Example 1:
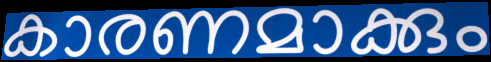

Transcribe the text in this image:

കാരണമാക്കും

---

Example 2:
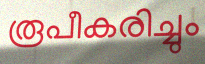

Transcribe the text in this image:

രൂപീകരിച്ചും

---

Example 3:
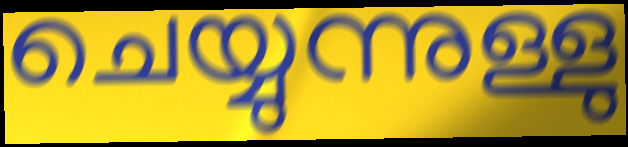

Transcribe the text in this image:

ചെയ്യുന്നുള്ളു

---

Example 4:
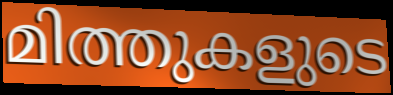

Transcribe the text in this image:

മിത്തുകളുടെ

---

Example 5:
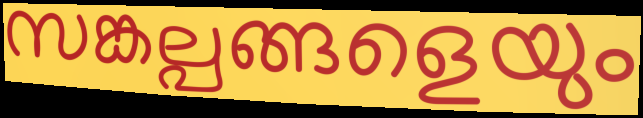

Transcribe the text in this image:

സങ്കല്പങ്ങളെയും